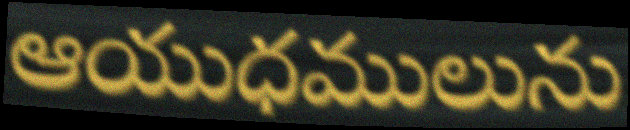
ఆయుధములును